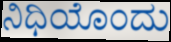
ನಿಧಿಯೊಂದು